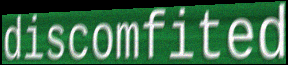
discomfited